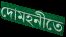
দোমহনীতে